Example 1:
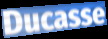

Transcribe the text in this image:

Ducasse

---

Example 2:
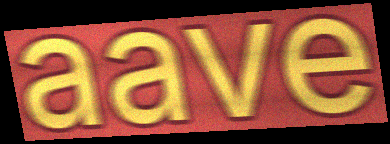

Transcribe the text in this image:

aave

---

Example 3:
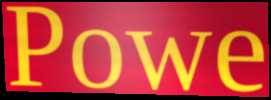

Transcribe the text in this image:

Powe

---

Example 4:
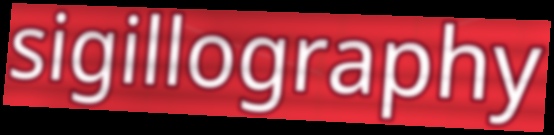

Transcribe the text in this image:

sigillography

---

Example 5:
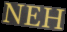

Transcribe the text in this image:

NEH